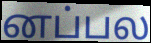
னப்பல